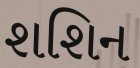
શશિન